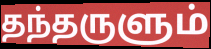
தந்தருளும்